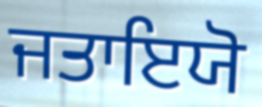
ਜਤਾਇਯੋ